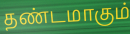
தண்டமாகும்